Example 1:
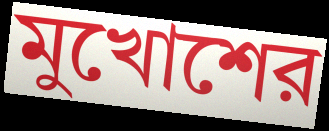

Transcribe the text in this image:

মুখোশের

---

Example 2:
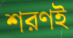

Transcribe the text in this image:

শরণই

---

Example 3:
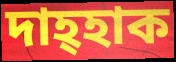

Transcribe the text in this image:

দাহ্হাক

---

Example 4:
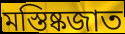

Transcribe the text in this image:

মস্তিষ্কজাত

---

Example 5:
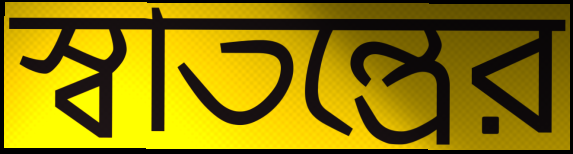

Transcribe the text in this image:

স্বাতন্ত্রের